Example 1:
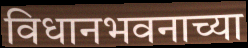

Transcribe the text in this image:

विधानभवनाच्या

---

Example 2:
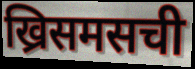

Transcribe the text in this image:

ख्रिसमसची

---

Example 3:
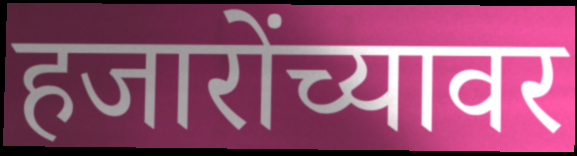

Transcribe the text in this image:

हजारोंच्यावर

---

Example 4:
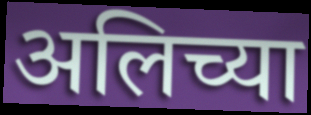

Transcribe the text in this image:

अलिच्या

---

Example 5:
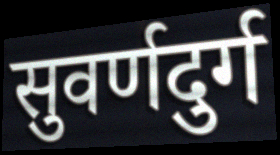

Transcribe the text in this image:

सुवर्णदुर्ग